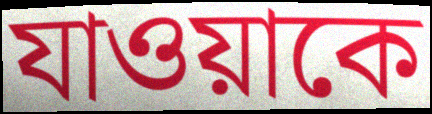
যাওয়াকে